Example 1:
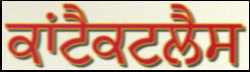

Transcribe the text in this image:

ਕਾਂਟੈਕਟਲੈਸ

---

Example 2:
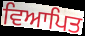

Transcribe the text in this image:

ਵਿਆਪਿਤ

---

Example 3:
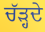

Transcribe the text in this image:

ਚੱੜ੍ਹਦੇ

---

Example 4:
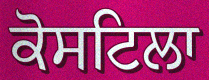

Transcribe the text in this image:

ਕੋਸਟਿਲਾ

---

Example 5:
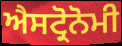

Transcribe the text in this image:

ਐਸਟ੍ਰੋਨੋਮੀ